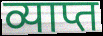
व्याप्त